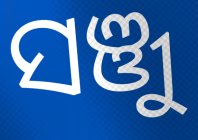
ସଞ୍ଜୁ